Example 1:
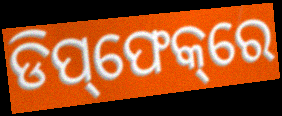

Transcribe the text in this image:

ଡିପ୍‌ଫେକ୍‌ରେ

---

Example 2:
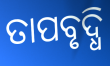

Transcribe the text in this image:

ତାପବୃଦ୍ଧି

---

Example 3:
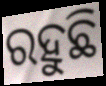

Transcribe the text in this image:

ରହୁଛି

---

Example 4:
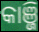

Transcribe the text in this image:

କାଞ୍ଜି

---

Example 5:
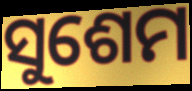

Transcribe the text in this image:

ସୁଶେମ